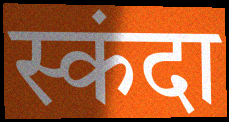
स्कंदा